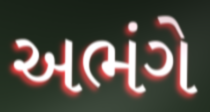
અભંગે